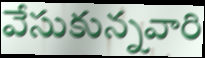
వేసుకున్నవారి